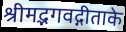
श्रीमद्भगवद्गीताके